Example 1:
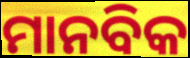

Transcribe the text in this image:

ମାନବିକ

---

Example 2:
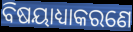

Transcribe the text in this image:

ବିଷୟାଧ୍ୟାକରଣେ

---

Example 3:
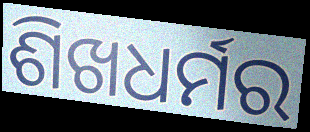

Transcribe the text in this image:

ଶିଖଧର୍ମର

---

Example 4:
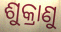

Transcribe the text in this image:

ଶୁକ୍ରାଣୁ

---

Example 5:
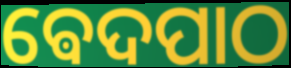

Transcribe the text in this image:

ଵେଦପାଠ